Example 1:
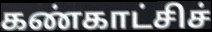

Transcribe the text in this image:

கண்காட்சிச்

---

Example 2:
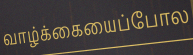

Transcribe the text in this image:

வாழ்க்கையைப்போல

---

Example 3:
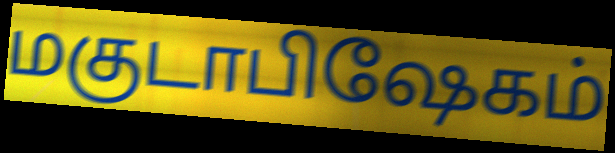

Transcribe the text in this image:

மகுடாபிஷேகம்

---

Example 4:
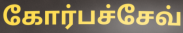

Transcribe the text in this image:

கோர்பச்சேவ்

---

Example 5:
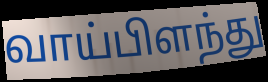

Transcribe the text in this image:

வாய்பிளந்து